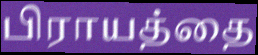
பிராயத்தை